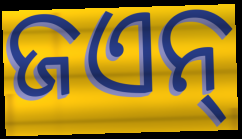
ଜଏନ୍